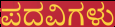
ಪದವಿಗಳು